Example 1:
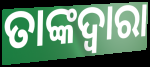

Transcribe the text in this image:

ତାଙ୍କଦ୍ୱାରା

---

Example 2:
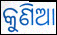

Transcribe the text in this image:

କୁଣିଆ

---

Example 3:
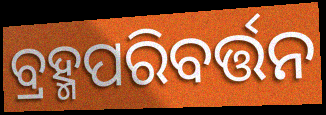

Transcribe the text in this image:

ବ୍ରହ୍ମପରିବର୍ତ୍ତନ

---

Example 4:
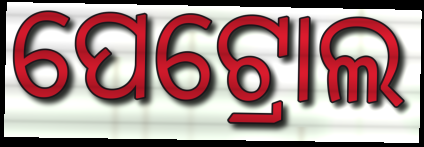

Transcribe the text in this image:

ପେଟ୍ରୋଲ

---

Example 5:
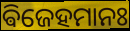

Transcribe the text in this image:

ଵିଜେହମାନଃ